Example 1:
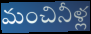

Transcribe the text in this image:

మంచినీళ్ల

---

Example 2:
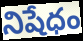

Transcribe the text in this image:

నిషేధం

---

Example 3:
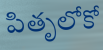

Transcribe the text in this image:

పితృలోకో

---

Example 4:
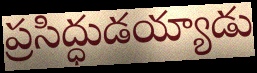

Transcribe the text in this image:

ప్రసిద్ధుడయ్యాడు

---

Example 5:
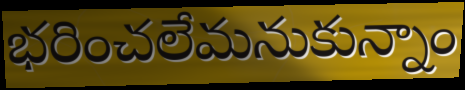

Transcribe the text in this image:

భరించలేమనుకున్నాం